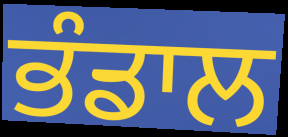
ਭੰਡਾਲ